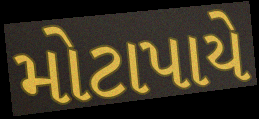
મોટાપાયે